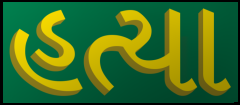
હત્યા